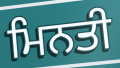
ਮਿਨਤੀ